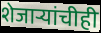
शेजाऱ्यांचीही